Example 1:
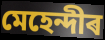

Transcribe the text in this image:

মেহেন্দীৰ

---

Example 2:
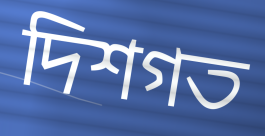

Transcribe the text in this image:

দিশগত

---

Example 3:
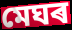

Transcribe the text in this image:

মেঘৰ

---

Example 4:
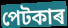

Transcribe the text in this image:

পেটকাৰ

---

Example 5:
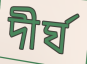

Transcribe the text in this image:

দীৰ্ঘ